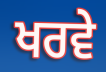
ਖਰਵੇ